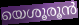
യെശൂരൂൻ